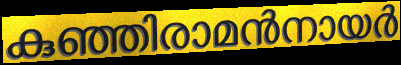
കുഞ്ഞിരാമൻനായർ